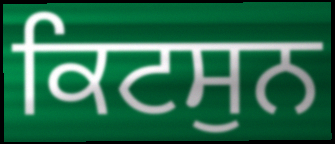
ਕਿਟਸੁਨ